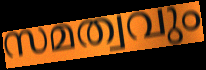
സമത്വവും